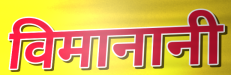
विमानानी